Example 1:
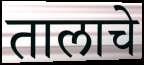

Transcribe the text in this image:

तालाचे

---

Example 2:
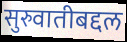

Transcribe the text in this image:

सुरुवातीबद्दल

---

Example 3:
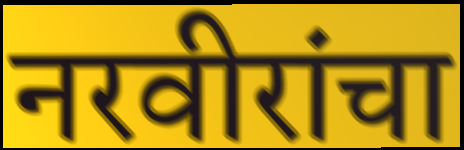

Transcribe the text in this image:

नरवीरांचा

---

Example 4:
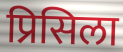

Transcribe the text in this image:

प्रिसिला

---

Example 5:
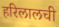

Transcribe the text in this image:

हरिलालची